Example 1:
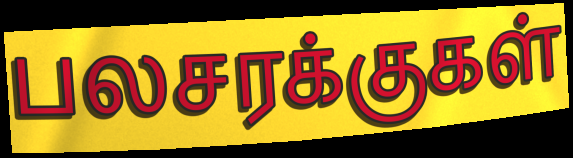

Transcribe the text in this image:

பலசரக்குகள்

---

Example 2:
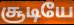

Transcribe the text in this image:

சூடியே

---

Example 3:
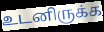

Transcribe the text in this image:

உடனிருக்க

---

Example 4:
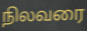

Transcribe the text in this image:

நிலவரை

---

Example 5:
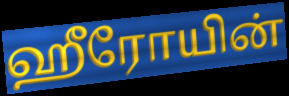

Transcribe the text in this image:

ஹீரோயின்